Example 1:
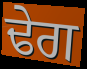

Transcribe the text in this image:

ਢੇਗ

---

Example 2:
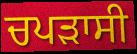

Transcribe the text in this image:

ਚਪੜਾਸੀ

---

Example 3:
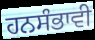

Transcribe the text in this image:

ਹਨਸੰਭਾਵੀ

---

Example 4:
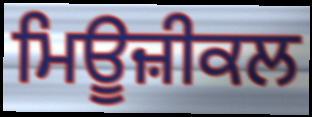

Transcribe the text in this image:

ਮਿਊਜ਼ੀਕਲ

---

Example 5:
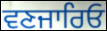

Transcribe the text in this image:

ਵਣਜਾਰਿਓ